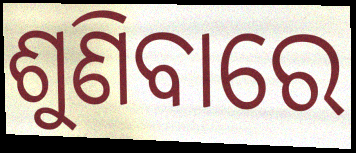
ଶୁଣିବାରେ